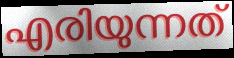
എരിയുന്നത്